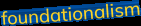
foundationalism